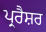
ਪ੍ਰਰੈਸ਼ਰ